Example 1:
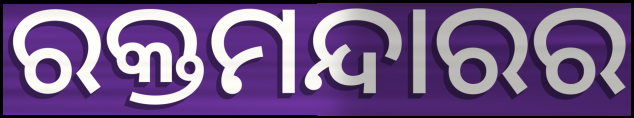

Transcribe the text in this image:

ରକ୍ତମନ୍ଦାରର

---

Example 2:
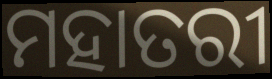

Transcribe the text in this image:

ମହାତରୀ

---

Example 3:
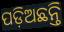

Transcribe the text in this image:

ପଡ଼ିଅଛନ୍ତି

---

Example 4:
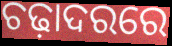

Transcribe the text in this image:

ଚଢ଼ାଦରରେ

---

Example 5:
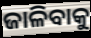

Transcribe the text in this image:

ଜାଳିବାକୁ